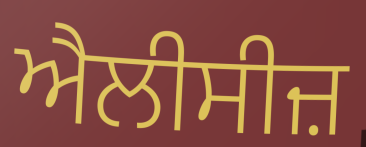
ਐਲੀਸੀਜ਼